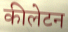
कीलेटन